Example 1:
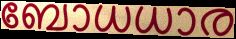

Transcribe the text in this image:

ബോധധാര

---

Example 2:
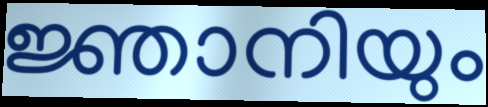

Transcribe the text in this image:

ജ്ഞാനിയും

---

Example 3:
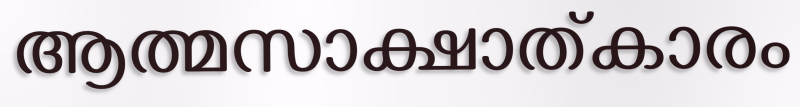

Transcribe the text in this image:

ആത്മസാക്ഷാത്കാരം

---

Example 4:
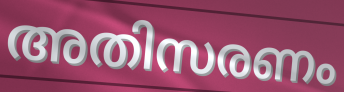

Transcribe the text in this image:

അതിസരണം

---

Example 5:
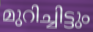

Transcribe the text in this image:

മുറിച്ചിട്ടും